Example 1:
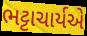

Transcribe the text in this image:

ભટ્ટાચાર્યએ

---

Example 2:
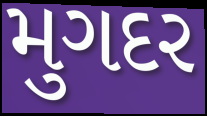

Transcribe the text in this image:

મુગદર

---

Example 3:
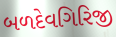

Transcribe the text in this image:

બળદેવગિરિજી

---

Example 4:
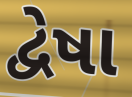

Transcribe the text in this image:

દ્વેષા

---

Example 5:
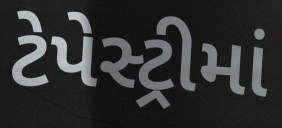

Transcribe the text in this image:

ટેપેસ્ટ્રીમાં